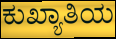
ಕುಖ್ಯಾತಿಯ